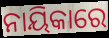
ନାୟିକାରେ